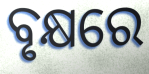
ବୃକ୍ଷରେ